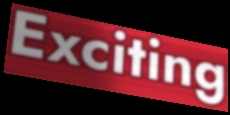
Exciting